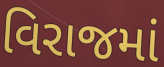
વિરાજમાં